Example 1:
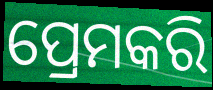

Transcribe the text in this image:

ପ୍ରେମକରି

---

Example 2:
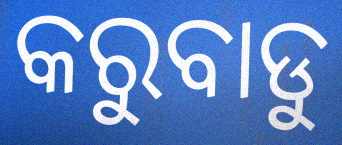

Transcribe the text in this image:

କରୁବାଡୁ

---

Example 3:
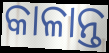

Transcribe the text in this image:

କାଳାନ୍ତ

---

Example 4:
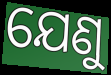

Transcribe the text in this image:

ଯେଣୁ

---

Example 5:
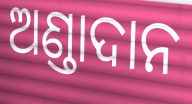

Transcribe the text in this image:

ଅଣ୍ଡାଦାନ